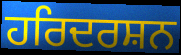
ਹਰਿਦਰਸ਼ਨ